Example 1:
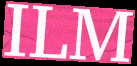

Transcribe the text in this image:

ILM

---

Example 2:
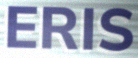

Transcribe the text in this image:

ERIS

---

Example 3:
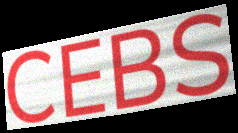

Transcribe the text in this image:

CEBS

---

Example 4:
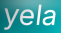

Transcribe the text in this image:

yela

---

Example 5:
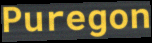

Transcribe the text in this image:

Puregon